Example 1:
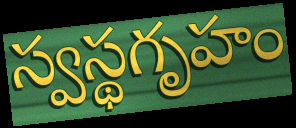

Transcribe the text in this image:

స్వస్థగృహం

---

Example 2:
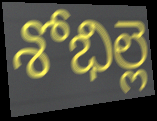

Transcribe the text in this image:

శోభిల్లె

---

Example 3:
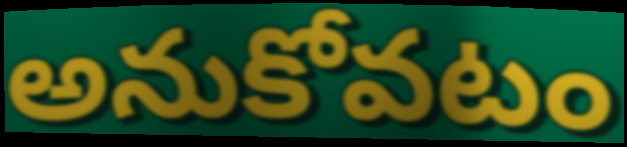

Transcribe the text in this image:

అనుకోవటం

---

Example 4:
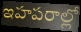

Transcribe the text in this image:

ఇహపరాల్లో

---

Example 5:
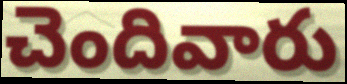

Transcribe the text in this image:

చెందివారు